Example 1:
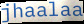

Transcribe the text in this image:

jhaalaa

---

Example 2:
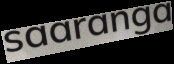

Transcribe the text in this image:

saaranga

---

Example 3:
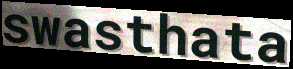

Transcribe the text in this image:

swasthata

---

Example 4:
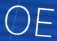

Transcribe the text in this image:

OE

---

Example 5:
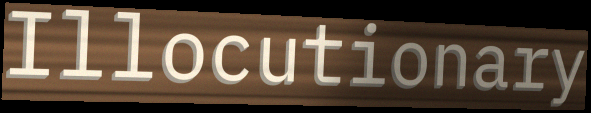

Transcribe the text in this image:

Illocutionary